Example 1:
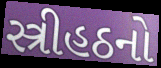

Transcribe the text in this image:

સ્ત્રીહઠનો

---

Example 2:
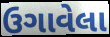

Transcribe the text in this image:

ઉગાવેલા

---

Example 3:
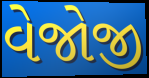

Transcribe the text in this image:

વેજોજી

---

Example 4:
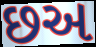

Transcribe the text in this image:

છઅ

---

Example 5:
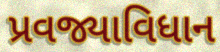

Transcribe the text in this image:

પ્રવજ્યાવિધાન